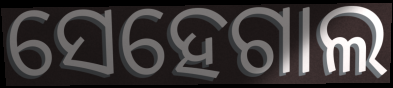
ସେହେଗାଲ